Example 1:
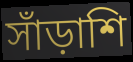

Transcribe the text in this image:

সাঁড়াশি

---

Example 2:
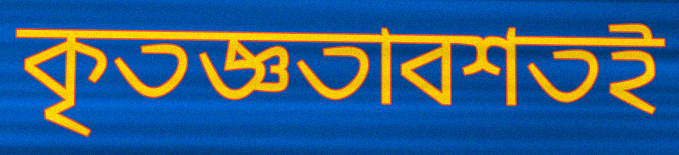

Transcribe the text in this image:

কৃতজ্ঞতাবশতই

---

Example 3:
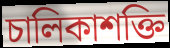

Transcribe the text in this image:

চালিকাশক্তি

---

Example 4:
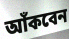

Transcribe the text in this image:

আঁকবেন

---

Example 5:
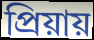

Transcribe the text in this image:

প্রিয়ায়